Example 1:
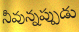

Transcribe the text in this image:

నీవున్నప్పుడు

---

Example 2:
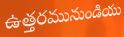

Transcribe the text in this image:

ఉత్తరమునుండియు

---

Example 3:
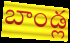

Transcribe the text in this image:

బాండ్ల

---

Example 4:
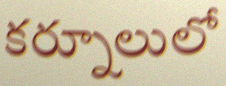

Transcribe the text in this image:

కర్నూలులో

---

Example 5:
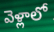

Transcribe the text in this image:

వెళ్లాలో